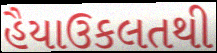
હૈયાઉકલતથી